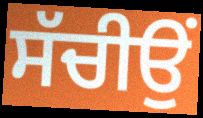
ਸੱਚੀਉਂ